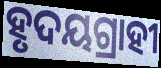
ହୃଦୟଗ୍ରାହୀ